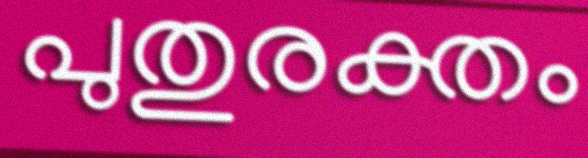
പുതുരക്തം